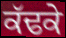
ਕੱਢਕੇ